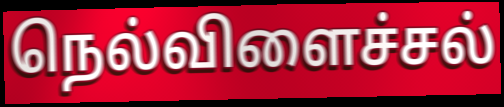
நெல்விளைச்சல்